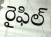
రైఫిల్